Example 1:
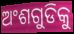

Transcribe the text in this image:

ଅଂଶଗୁଡିକୁ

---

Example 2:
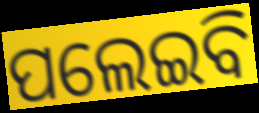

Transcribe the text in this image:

ପଲେଇବି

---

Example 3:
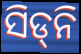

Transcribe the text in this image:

ସିଡ୍‍ନି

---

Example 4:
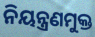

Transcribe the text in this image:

ନିୟନ୍ତ୍ରଣମୁକ୍ତ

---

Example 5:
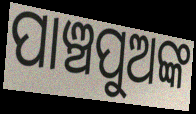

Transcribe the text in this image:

ପାଞ୍ଚପୁଅଙ୍କ